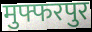
मुफ्फरपुर